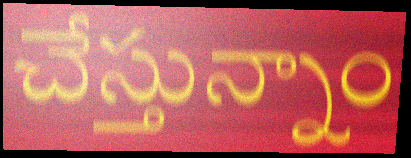
చేస్తున్నాం